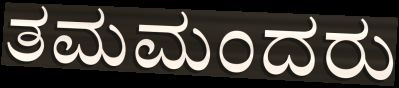
ತಮಮಂದರು